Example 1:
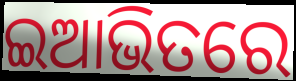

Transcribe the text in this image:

ଇଆଭିତରେ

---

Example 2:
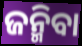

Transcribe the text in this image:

ଜନ୍ମିବା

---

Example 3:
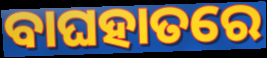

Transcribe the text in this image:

ବାଘହାତରେ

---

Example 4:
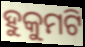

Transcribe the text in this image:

ହୁକୁମଟି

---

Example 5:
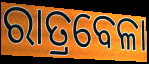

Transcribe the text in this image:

ରାତ୍ରବେଳା